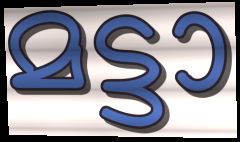
മട്ടാ